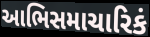
આભિસમાચારિકં